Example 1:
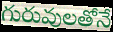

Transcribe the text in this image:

గురువులతోనే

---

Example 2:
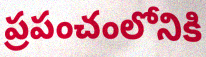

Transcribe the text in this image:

ప్రపంచంలోనికి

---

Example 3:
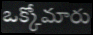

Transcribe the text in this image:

ఒక్కోమారు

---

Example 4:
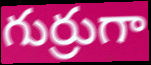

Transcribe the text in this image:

గుర్రుగా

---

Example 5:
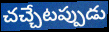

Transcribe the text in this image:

చచ్చేటప్పుడు